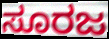
ಸೂರಜ